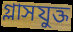
গ্লাসযুক্ত